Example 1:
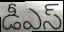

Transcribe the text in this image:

డీఎస్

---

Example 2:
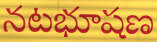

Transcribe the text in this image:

నటభూషణ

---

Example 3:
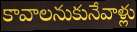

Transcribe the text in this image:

కావాలనుకునేవాళ్లు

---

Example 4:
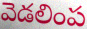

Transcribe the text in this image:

వెడలింప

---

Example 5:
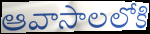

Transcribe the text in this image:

ఆవాసాలలోకి